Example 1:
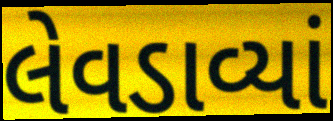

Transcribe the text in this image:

લેવડાવ્યાં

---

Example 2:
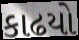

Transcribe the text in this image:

કાઢયો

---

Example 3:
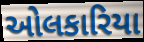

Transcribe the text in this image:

ઓલકારિયા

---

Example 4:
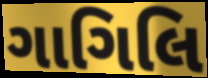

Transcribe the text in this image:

ગાગિલિ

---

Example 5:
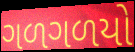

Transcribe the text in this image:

ગળગળયો